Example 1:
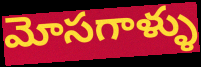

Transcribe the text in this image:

మోసగాళ్ళు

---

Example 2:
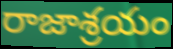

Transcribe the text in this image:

రాజాశ్రయం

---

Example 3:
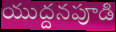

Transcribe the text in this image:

యుద్దనపూడి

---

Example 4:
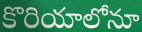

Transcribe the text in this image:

కొరియాలోనూ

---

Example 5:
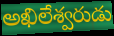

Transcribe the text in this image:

అఖిలేశ్వరుడు